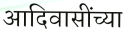
आदिवासींच्या